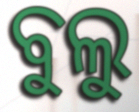
ବୁଲୁ